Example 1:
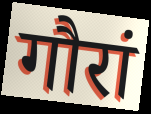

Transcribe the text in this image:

गौरां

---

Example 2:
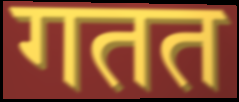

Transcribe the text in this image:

गतत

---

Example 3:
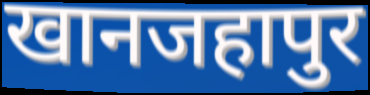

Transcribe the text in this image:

खानजहापुर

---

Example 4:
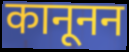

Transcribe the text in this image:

कानूनन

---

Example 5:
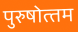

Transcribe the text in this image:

पुरुषोत्‍तम